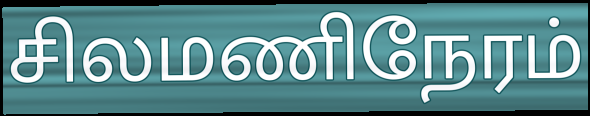
சிலமணிநேரம்